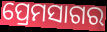
ପ୍ରେମସାଗର